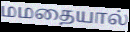
மமதையால்